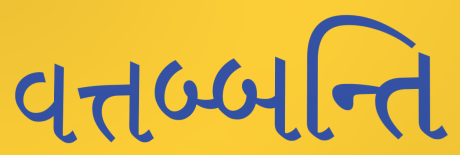
વત્તબ્બન્તિ